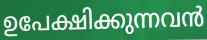
ഉപേക്ഷിക്കുന്നവൻ